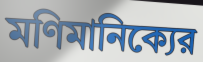
মণিমানিক্যের